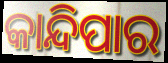
କାନ୍ଦିପାର